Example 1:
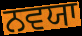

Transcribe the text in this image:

ਨਵਯਾ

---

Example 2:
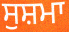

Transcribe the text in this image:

ਸੁਸ਼ਮਾ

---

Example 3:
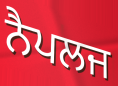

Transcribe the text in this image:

ਨੈਪਲਜ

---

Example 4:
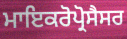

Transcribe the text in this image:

ਮਾਇਕਰੋਪ੍ਰੋਸੈਸਰ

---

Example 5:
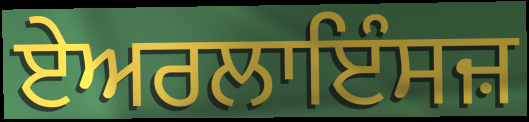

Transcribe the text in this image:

ਏਅਰਲਾਇੰਸਜ਼